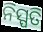
ନିସ୍ପତି